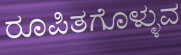
ರೂಪಿತಗೊಳ್ಳುವ